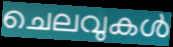
ചെലവുകൾ